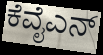
ಕೆವೈಎನ್